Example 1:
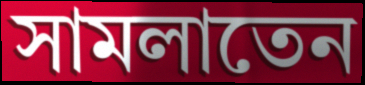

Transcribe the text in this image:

সামলাতেন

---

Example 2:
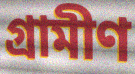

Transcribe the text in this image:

গ্রামীণ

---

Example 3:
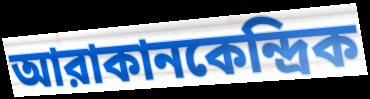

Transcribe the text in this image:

আরাকানকেন্দ্রিক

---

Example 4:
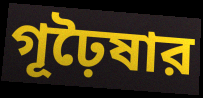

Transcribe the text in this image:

গূঢ়ৈষার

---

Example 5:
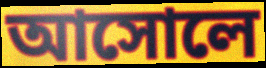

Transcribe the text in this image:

আসোলে